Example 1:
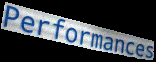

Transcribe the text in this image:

Performances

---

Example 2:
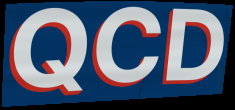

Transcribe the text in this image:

QCD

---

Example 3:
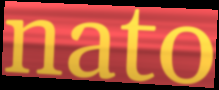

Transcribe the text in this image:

nato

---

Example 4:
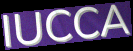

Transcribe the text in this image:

IUCCA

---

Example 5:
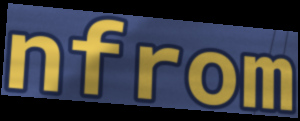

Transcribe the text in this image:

nfrom